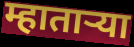
म्हातार्‍या